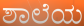
ಶಾಲೆಯ